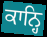
ਕਾਨ੍ਹਿ